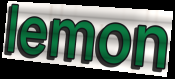
lemon